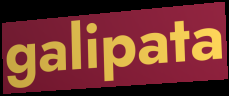
galipata